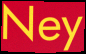
Ney